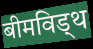
बीमविड्थ